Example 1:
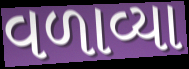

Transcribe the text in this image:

વળાવ્યા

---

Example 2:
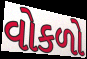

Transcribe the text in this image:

વોકળો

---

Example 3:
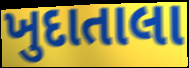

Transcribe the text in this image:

ખુદાતાલા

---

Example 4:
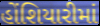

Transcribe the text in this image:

હોંશિયારીમાં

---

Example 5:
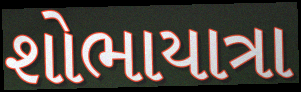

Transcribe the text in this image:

શોભાયાત્રા